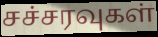
சச்சரவுகள்